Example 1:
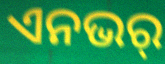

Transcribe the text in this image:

ଏନଭର୍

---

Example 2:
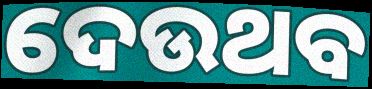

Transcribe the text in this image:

ଦେଉଥବ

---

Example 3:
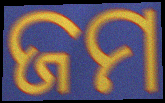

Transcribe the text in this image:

ଜମ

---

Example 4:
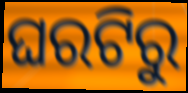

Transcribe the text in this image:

ଘରଟିରୁ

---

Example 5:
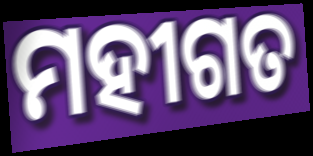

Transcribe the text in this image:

ମହୀଗତ